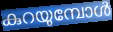
കുറയുമ്പോൾ